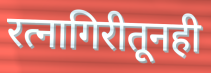
रत्नागिरीतूनही